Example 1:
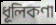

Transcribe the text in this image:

ধূলিকণা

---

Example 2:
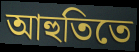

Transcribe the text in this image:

আহুতিতে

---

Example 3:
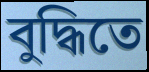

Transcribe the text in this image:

বুদ্ধিতে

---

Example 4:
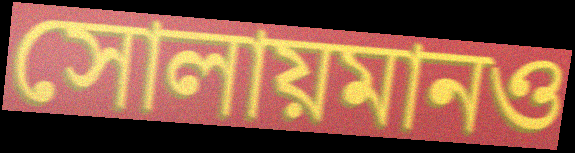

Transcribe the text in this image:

সোলায়মানও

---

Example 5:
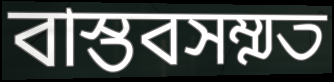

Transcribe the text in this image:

বাস্তবসম্মত